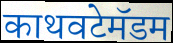
काथवटेमॅडम